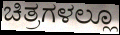
ಚಿತ್ರಗಳಲ್ಲೂ